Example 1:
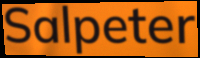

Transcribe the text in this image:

Salpeter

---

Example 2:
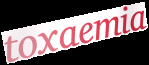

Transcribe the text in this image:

toxaemia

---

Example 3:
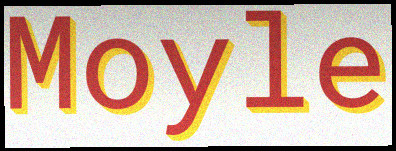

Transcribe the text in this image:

Moyle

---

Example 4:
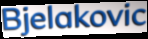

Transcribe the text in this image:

Bjelakovic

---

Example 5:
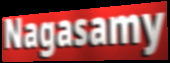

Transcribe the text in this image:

Nagasamy